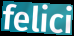
felici